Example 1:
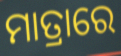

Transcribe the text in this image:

ମାତ୍ରାରେ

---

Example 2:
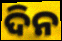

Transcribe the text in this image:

ଦିନ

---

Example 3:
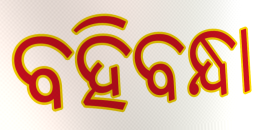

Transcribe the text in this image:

ବହିବନ୍ଧା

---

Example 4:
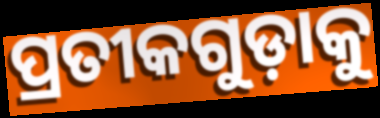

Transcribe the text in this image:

ପ୍ରତୀକଗୁଡ଼ାକୁ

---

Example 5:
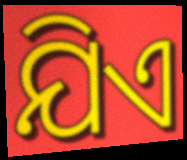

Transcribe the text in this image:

ଯିଏ